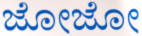
ಜೋಜೋ